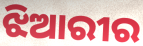
ଝିଆରୀର